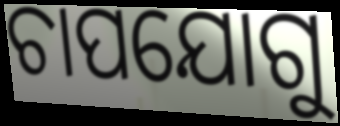
ଚାପଯୋଗୁ